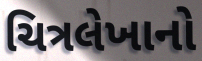
ચિત્રલેખાનો